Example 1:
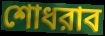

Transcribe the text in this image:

শোধরাব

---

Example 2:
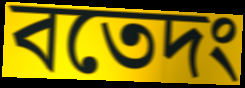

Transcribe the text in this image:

বতেদং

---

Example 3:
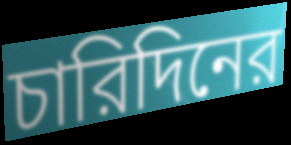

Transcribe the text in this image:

চারিদিনের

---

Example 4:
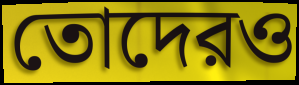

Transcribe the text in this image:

তোদেরও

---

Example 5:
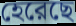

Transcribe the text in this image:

হেরেছে